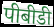
पीबीडी